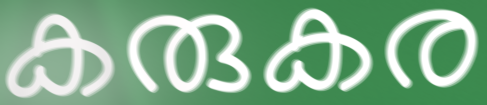
കരുകര